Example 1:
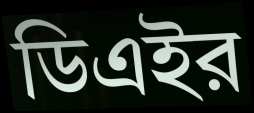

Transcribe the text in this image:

ডিএইর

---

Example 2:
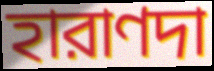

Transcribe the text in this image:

হারাণদা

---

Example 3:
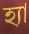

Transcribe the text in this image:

হ্যা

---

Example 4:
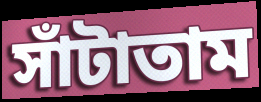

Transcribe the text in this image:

সাঁটাতাম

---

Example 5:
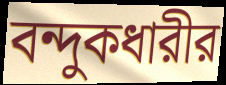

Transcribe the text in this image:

বন্দুকধারীর